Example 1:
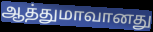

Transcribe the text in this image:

ஆத்துமாவானது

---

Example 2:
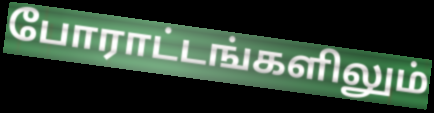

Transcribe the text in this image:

போராட்டங்களிலும்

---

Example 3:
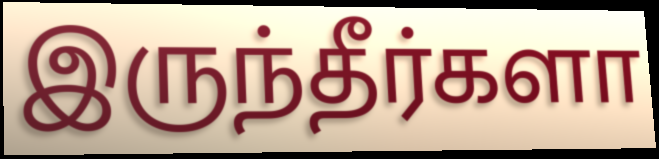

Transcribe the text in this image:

இருந்தீர்களா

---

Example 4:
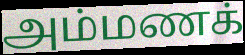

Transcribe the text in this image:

அம்மணக்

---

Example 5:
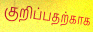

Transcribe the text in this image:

குறிப்பதற்காக